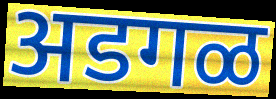
अडगळ